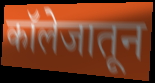
कॉलेजातून